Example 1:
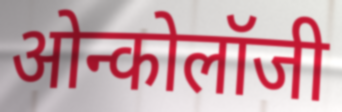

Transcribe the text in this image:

ओन्कोलॉजी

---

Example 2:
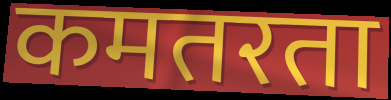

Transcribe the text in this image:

कमतरता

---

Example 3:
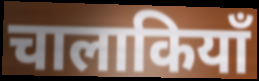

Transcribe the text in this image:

चालाकियाँ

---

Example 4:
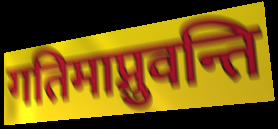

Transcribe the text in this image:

गतिमाप्नुवन्ति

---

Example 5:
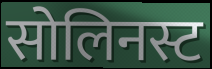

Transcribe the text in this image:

सोलिनस्ट